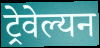
ट्रेवेल्यन